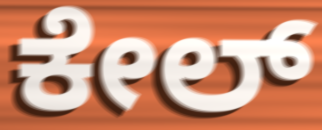
ಕೇಲ್